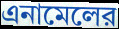
এনামেলের